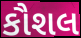
કૌશલ